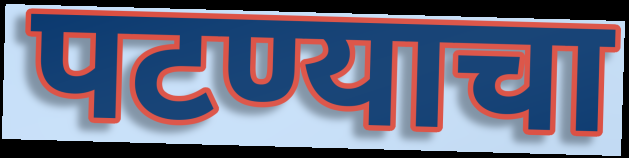
पटण्याचा